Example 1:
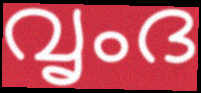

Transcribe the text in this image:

വൃംദ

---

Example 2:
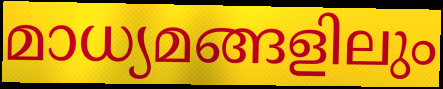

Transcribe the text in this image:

മാധ്യമങ്ങളിലും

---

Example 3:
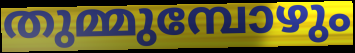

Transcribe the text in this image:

തുമ്മുമ്പോഴും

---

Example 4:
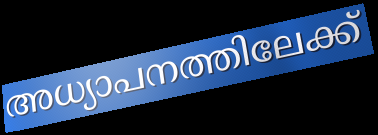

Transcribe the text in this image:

അധ്യാപനത്തിലേക്ക്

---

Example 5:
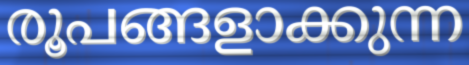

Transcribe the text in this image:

രൂപങ്ങളാക്കുന്ന